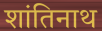
शांतिनाथ